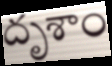
దృశాం